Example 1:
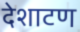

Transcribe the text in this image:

देशाटण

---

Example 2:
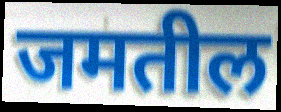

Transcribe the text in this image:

जमतील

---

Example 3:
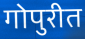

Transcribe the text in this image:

गोपुरीत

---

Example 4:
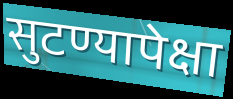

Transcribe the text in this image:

सुटण्यापेक्षा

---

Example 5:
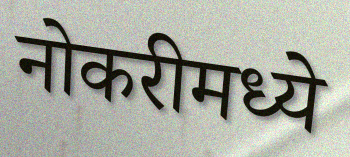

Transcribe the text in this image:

नोकरीमध्ये